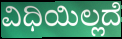
ವಿಧಿಯಿಲ್ಲದೆ